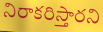
నిరాకరిస్తారని